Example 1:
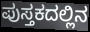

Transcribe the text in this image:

ಪುಸ್ತಕದಲ್ಲಿನ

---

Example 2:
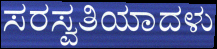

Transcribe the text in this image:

ಸರಸ್ವತಿಯಾದಳು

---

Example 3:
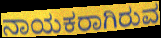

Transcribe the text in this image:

ನಾಯಕರಾಗಿರುವ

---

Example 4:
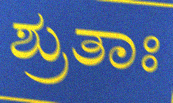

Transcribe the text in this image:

ಶ್ರುತಾಃ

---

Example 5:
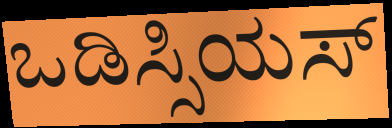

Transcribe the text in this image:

ಒಡಿಸ್ಸಿಯಸ್